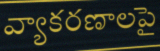
వ్యాకరణాలపై